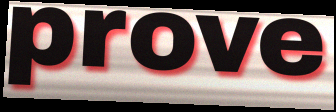
prove